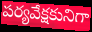
పర్యవేక్షకునిగా